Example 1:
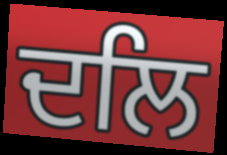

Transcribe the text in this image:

ਦਲਿ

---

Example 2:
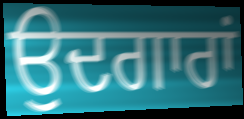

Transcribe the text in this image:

ਉਦਗਾਰਾਂ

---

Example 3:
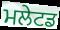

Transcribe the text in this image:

ਮਲੇਟਡ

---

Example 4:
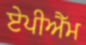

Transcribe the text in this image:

ਏਪੀਐੱਮ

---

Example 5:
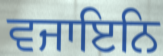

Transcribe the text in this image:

ਵਜਾਇਨਿ